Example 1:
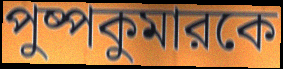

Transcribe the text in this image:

পুষ্পকুমারকে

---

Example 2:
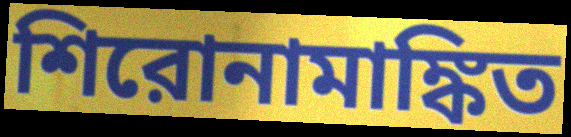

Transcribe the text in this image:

শিরোনামাঙ্কিত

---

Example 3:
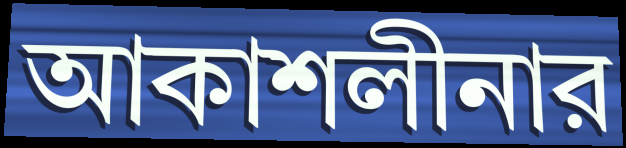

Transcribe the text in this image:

আকাশলীনার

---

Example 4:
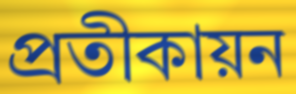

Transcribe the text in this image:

প্রতীকায়ন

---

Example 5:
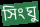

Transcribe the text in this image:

সিংঘু